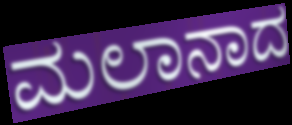
ಮಲಾನಾದ